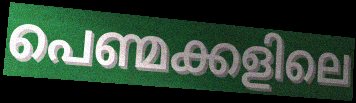
പെണ്മക്കളിലെ